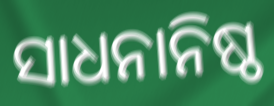
ସାଧନାନିଷ୍ଠ